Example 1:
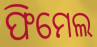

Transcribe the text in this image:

ଫିମେଲ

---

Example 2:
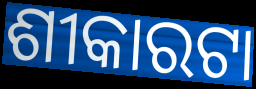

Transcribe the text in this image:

ଶୀକାରଟା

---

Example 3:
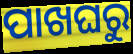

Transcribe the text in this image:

ପାଖଘରୁ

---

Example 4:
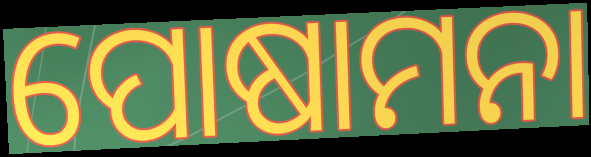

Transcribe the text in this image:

ପୋଷାମନା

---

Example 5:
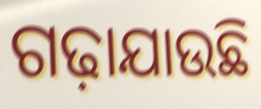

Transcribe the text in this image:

ଗଢ଼ାଯାଉଛି